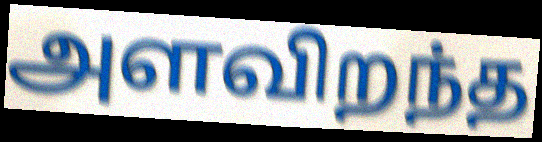
அளவிறந்த